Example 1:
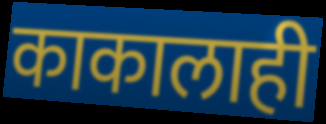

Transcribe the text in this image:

काकालाही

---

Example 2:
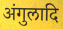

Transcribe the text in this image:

अंगुलादि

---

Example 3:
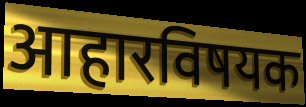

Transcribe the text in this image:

आहारविषयक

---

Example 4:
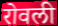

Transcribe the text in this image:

रोवली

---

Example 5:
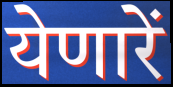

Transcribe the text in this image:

येणारें